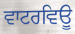
ਵਾਟਰਵਿਊ